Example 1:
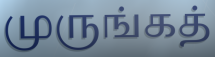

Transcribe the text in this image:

முருங்கத்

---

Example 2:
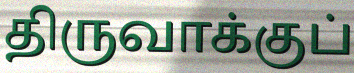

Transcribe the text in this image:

திருவாக்குப்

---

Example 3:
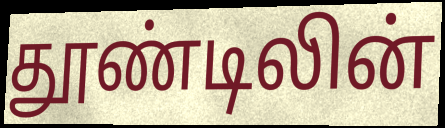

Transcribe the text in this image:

தூண்டிலின்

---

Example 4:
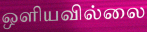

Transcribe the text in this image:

ஒளியவில்லை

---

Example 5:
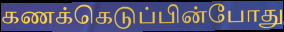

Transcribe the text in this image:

கணக்கெடுப்பின்போது